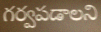
గర్వపడాలని